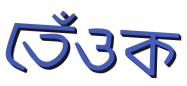
তেঁওক